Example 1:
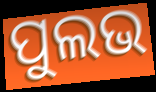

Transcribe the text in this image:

ପୁଲଭ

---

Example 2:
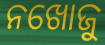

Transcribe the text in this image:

ନଖୋଜୁ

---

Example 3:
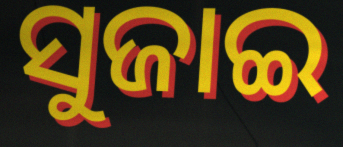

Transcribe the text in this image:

ସୁଜାଇ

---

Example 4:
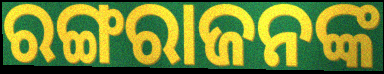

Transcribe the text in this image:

ରଙ୍ଗରାଜନଙ୍କ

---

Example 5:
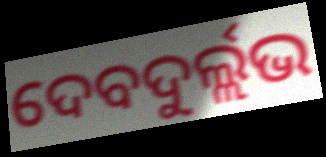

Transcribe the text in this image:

ଦେବଦୁର୍ଲ୍ଲଭ